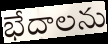
భేదాలను